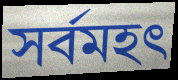
সর্বমহৎ